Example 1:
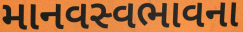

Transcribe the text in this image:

માનવસ્વભાવના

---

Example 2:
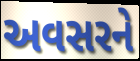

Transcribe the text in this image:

અવસરને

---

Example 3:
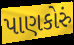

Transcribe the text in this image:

પાણકોરું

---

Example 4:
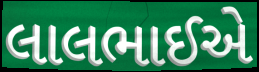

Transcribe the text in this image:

લાલભાઈએ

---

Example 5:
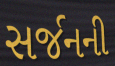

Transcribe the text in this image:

સર્જનની